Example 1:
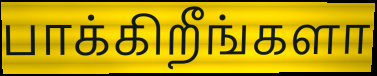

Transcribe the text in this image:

பாக்கிறீங்களா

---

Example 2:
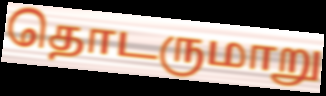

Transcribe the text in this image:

தொடருமாறு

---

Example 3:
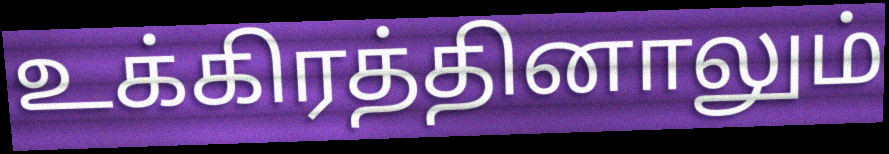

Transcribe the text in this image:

உக்கிரத்தினாலும்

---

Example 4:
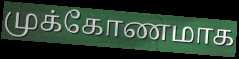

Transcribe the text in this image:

முக்கோணமாக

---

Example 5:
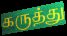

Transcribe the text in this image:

கருத்து